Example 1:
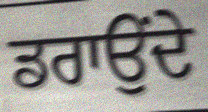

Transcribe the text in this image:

ਡਰਾਉਂਦੇ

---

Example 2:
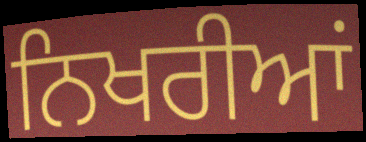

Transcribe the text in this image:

ਨਿਖਰੀਆਂ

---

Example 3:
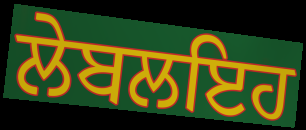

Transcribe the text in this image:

ਲੇਬਲਇਹ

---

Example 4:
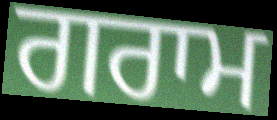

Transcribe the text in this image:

ਗਰਾਮ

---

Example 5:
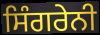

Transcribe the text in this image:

ਸਿੰਗਰੇਨੀ